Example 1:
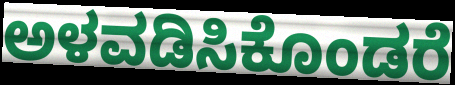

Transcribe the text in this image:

ಅಳವಡಿಸಿಕೊಂಡರೆ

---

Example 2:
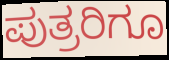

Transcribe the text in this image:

ಪುತ್ರರಿಗೂ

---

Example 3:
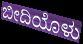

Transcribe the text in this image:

ಬೀದಿಯೊಳು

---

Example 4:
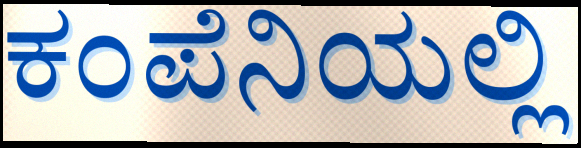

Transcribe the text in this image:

ಕಂಪೆನಿಯಲ್ಲಿ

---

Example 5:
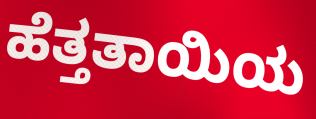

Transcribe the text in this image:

ಹೆತ್ತತಾಯಿಯ